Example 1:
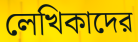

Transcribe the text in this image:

লেখিকাদের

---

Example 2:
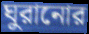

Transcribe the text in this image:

ঘুরানোর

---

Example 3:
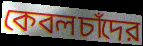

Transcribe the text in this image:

কেবলচাঁদের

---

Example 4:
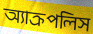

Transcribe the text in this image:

অ্যাক্রপলিস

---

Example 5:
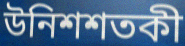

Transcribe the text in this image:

উনিশশতকী